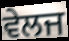
ਵੇਲਜ